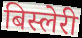
बिस्लेरी